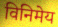
विनिमेय